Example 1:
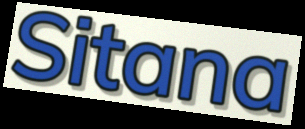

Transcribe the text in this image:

Sitana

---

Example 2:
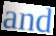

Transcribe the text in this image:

and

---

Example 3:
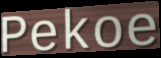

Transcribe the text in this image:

Pekoe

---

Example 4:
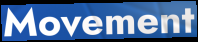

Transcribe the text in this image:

Movement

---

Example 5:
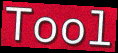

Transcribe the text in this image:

Tool